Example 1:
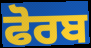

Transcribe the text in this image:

ਫੋਰਬ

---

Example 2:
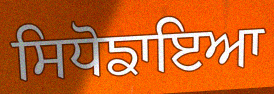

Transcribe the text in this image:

ਸਿਧੋਙਾਇਆ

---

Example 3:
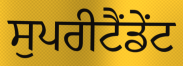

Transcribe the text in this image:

ਸੁਪਰੀਟੈਂਡੇਂਟ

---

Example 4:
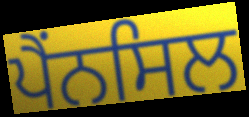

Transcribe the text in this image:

ਪੈਂਨਸਿਲ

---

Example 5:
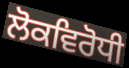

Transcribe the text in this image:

ਲੋਕਵਿਰੋਧੀ